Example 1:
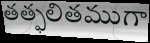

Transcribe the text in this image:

తత్ఫలితముగా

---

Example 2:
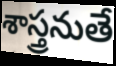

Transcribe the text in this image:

శాస్త్రనుతే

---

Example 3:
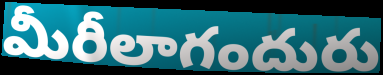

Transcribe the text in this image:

మీరీలాగందురు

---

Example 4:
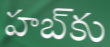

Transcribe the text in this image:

హబ్‌కు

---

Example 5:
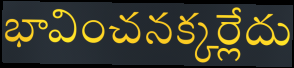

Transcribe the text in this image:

భావించనక్కర్లేదు